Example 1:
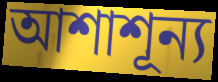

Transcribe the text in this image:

আশাশূন্য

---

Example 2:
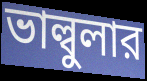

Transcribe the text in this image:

ভাল্বুলার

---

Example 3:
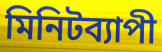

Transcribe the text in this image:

মিনিটব্যাপী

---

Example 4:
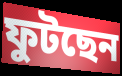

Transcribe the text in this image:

ফুটছেন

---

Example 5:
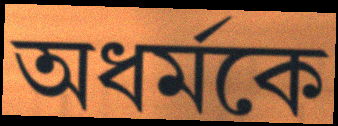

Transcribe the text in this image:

অধর্মকে